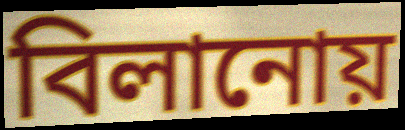
বিলানোয়